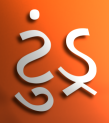
ટુંડ્ર